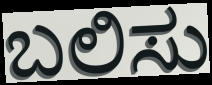
ಬಲಿಸು